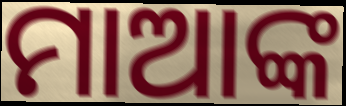
ମାଆଙ୍କ